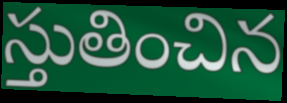
స్తుతించిన